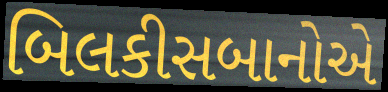
બિલકીસબાનોએ